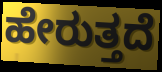
ಹೇರುತ್ತದೆ